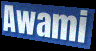
Awami